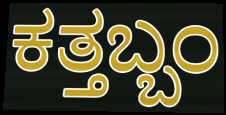
ಕತ್ತಬ್ಬಂ